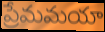
ప్రేమమయా